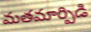
మతమార్పిడి